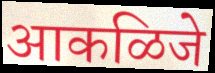
आकळिजे